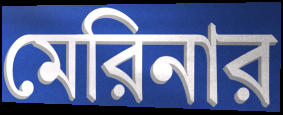
মেরিনার